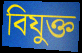
বিযুক্ত